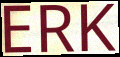
ERK